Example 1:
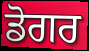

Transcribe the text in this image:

ਡੋਗਰ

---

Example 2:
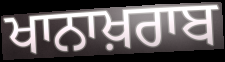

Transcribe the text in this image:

ਖਾਨਾਖ਼ਰਾਬ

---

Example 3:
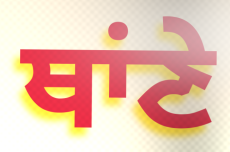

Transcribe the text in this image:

ਥਾਂਣੇ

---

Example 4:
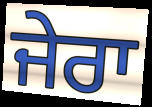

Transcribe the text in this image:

ਜੇਰਾ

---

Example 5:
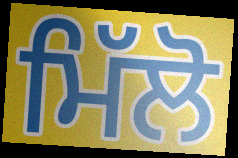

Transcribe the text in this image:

ਮਿੱਲੋ